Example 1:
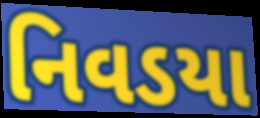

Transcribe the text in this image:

નિવડયા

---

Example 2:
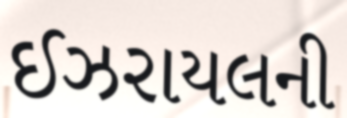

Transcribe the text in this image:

ઈઝરાયલની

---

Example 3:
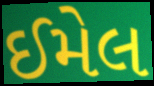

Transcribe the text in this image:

ઈમેલ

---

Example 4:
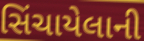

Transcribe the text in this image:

સિંચાયેલાની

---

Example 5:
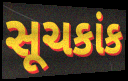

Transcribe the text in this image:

સૂચકાંક